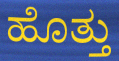
ಹೊತ್ತು